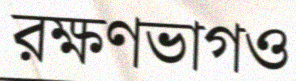
রক্ষণভাগও